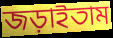
জড়াইতাম